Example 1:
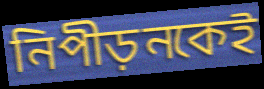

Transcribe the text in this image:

নিপীড়নকেই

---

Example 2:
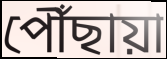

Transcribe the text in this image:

পৌঁছায়া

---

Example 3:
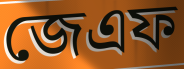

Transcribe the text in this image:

জেএফ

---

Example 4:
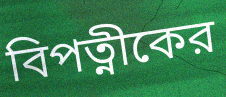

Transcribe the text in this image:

বিপত্নীকের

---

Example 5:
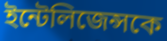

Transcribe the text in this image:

ইন্টেলিজেন্সকে